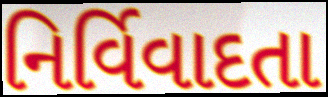
નિર્વિવાદતા